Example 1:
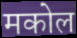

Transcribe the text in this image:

मकोल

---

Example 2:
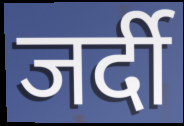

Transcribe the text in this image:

जर्दी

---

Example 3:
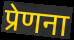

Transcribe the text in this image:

प्रेणना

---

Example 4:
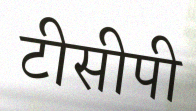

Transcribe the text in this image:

टीसीपी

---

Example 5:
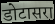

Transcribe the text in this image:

डोटासरा